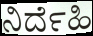
ನಿರ್ದೆಹಿ